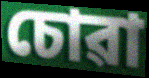
চোৱা